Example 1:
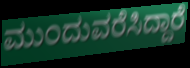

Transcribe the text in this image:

ಮುಂದುವರೆಸಿದ್ದಾರೆ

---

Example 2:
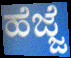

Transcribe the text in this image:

ಹೆಜ್ಜೆ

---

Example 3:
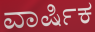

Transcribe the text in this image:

ವಾರ್ಷಿಕ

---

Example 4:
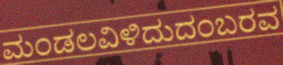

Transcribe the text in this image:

ಮಂಡಲವಿಳಿದುದಂಬರವ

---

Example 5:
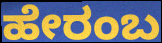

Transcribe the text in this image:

ಹೇರಂಬ